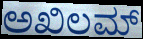
ಅಖಿಲಮ್